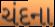
ચંદના